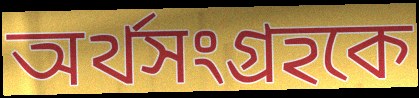
অর্থসংগ্রহকে